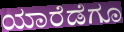
ಯಾರೆಡೆಗೂ